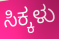
ಸಿಕ್ಕಳು